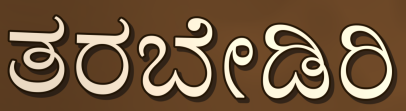
ತರಬೇಡಿರಿ